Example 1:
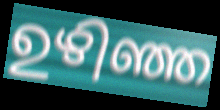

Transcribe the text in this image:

ഉഴിഞ്ഞ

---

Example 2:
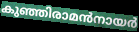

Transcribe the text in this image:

കുഞ്ഞിരാമൻനായർ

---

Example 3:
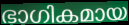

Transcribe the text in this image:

ഭാഗികമായ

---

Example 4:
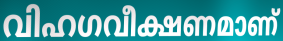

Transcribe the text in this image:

വിഹഗവീക്ഷണമാണ്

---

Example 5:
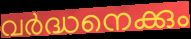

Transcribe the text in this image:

വർദ്ധനെക്കും